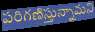
పరిగణిస్తున్నామని